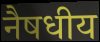
नैषधीय